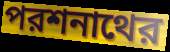
পরশনাথের